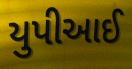
યુપીઆઈ